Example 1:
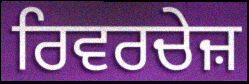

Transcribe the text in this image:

ਰਿਵਰਚੇਜ਼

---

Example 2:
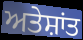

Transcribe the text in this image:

ਅਤੇਸ਼ਾਂਤ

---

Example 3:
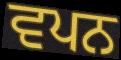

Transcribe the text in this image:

ਵਪਨ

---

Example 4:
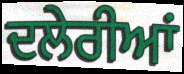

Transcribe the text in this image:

ਦਲੇਰੀਆਂ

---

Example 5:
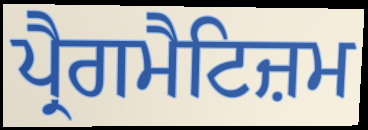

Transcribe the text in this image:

ਪ੍ਰੈਗਮੈਟਿਜ਼ਮ